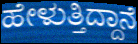
ಹೇಳುತ್ತಿದ್ದಾನೆ